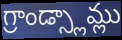
గ్రాండ్స్లామ్లు